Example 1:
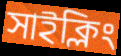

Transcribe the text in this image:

সাইক্লিং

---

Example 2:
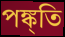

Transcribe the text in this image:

পঙ্ক্তি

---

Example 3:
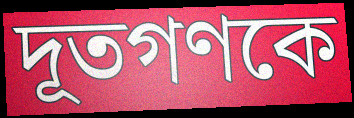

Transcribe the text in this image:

দূতগণকে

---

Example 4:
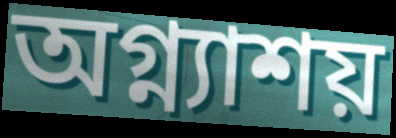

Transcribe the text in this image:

অগ্ন্যাশয়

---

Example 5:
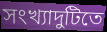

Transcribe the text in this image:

সংখ্যাদুটিতে